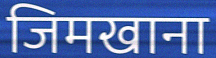
जिमखाना